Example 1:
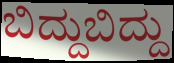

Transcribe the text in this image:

ಬಿದ್ದುಬಿದ್ದು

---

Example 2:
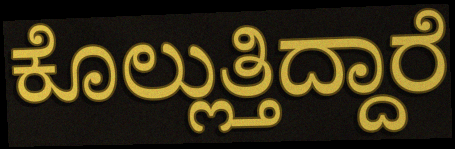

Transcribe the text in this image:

ಕೊಲ್ಲುತ್ತಿದ್ದಾರೆ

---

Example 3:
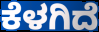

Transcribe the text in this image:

ಕೆಳಗಿದೆ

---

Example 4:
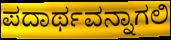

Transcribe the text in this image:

ಪದಾರ್ಥವನ್ನಾಗಲಿ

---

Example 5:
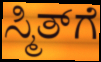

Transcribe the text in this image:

ಸ್ಮಿತ್‌ಗೆ